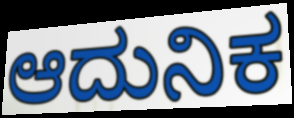
ಆದುನಿಕ